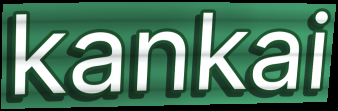
kankai